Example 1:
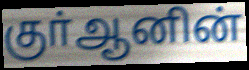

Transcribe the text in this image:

குர்ஆனின்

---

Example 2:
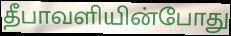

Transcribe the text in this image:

தீபாவளியின்போது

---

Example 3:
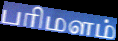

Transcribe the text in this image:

பரிமளம்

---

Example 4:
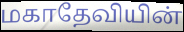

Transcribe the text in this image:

மகாதேவியின்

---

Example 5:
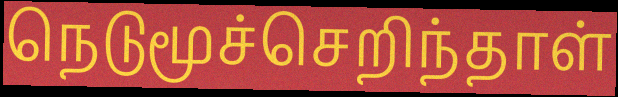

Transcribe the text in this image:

நெடுமூச்செறிந்தாள்